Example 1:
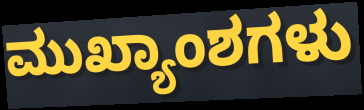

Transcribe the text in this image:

ಮುಖ್ಯಾಂಶಗಳು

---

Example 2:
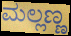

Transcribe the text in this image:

ಮಲ್ಲಣ್ಣ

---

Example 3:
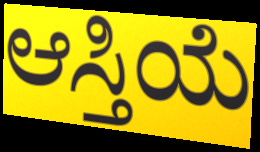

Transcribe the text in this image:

ಆಸ್ತಿಯೆ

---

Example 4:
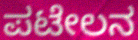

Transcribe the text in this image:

ಪಟೇಲನ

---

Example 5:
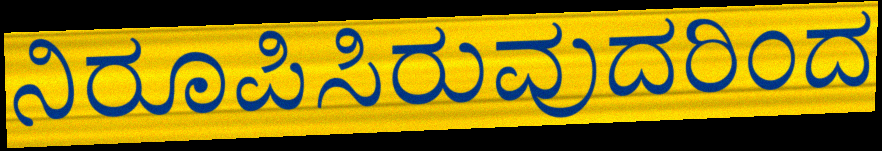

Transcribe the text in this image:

ನಿರೂಪಿಸಿರುವುದರಿಂದ